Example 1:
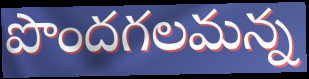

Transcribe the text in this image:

పొందగలమన్న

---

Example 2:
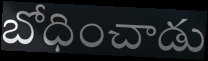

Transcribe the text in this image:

బోధించాడు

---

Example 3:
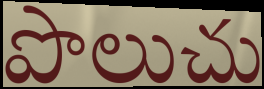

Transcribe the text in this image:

పొలుచు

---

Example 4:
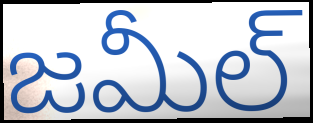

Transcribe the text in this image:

జమీల్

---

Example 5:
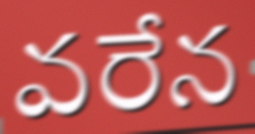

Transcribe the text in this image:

వరేన